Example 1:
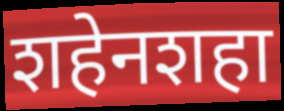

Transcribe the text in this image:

शहेनशहा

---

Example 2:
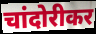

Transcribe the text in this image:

चांदोरीकर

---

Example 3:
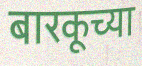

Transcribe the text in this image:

बारकूच्या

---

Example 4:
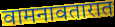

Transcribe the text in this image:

वामनावतारात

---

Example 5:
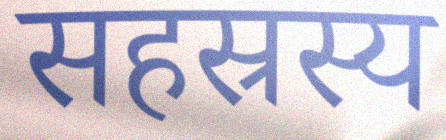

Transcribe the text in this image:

सहस्रस्य